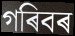
গৰিবৰ